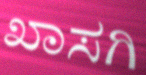
ಖಾಸಗಿ